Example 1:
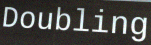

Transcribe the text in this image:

Doubling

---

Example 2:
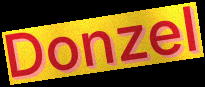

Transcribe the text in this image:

Donzel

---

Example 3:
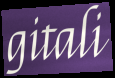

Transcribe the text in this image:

gitali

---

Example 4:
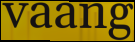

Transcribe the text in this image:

vaang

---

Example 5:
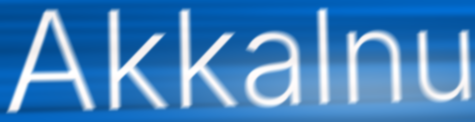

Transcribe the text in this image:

Akkalnu